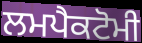
ਲਮਪੈਕਟੋਮੀ